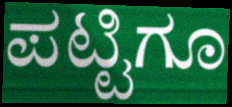
ಪಟ್ಟಿಗೂ